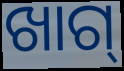
ଖାଗ୍